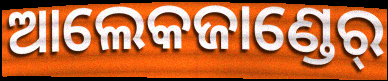
ଆଲେକଜାଣ୍ଡେର୍